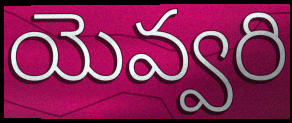
యెవ్వరి